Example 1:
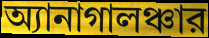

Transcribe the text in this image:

অ্যানাগালঞ্চার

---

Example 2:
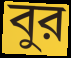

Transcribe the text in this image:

বুর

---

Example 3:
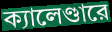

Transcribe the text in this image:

ক্যালেণ্ডারে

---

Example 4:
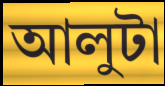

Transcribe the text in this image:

আলুটা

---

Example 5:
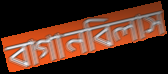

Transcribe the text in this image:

বাগানবিলাস